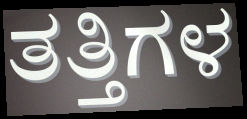
ತತ್ತಿಗಳ